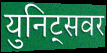
युनिट्सवर